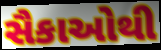
સૈકાઓથી